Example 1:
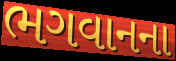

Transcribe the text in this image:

ભગવાનના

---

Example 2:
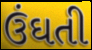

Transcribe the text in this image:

ઉંઘતી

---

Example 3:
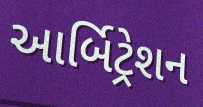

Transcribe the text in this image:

આર્બિટ્રેશન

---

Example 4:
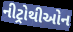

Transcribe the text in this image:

નીટ્રોથીઓન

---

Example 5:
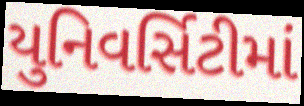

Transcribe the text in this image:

યુનિવર્સિટીમાં